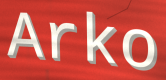
Arko